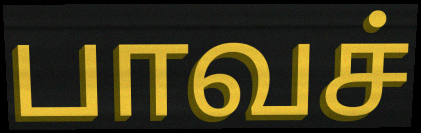
பாவச்